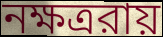
নক্ষত্ররায়